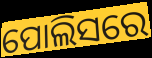
ପୋଲିସରେ